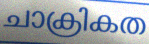
ചാക്രികത